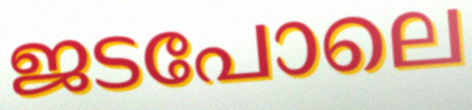
ജടപോലെ